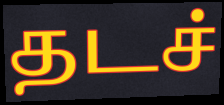
தடச்